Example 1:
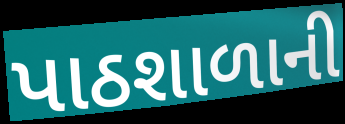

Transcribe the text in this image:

પાઠશાળાની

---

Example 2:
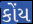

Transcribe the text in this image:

કોંય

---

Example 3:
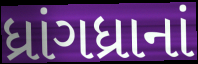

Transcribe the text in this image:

ધ્રાંગધ્રાનાં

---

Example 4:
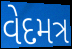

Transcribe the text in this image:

વેદમત્ર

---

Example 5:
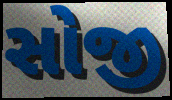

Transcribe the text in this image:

સોજી